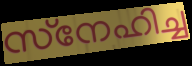
സ്‌നേഹിച്ച